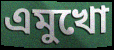
এমুখো